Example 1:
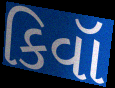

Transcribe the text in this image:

કિવૉ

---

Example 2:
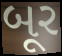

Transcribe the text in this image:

બૂર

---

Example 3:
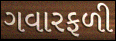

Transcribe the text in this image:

ગવારફળી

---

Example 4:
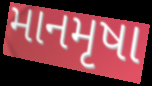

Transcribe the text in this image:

માનમૃષા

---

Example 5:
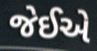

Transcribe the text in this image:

જેઈએ